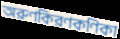
অরুণকিরণকণিকা